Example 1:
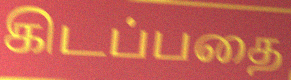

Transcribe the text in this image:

கிடப்பதை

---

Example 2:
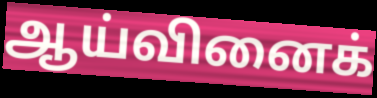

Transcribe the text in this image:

ஆய்வினைக்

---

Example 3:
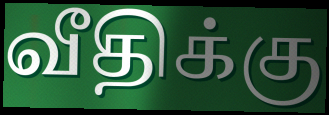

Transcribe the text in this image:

வீதிக்கு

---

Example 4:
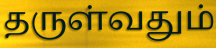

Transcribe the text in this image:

தருள்வதும்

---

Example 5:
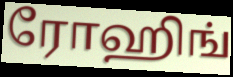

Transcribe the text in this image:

ரோஹிங்